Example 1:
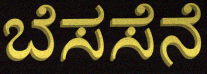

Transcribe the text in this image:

ಬೆಸಸೆನೆ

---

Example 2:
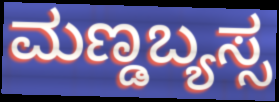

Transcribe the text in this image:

ಮಣ್ಡಬ್ಯಸ್ಸ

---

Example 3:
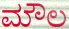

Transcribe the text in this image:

ಮೌಲ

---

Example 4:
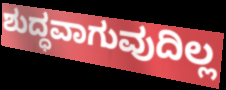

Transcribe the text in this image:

ಶುದ್ಧವಾಗುವುದಿಲ್ಲ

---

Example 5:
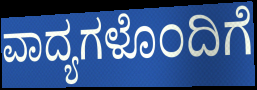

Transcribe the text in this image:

ವಾದ್ಯಗಳೊಂದಿಗೆ